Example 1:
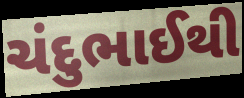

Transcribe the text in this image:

ચંદુભાઈથી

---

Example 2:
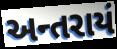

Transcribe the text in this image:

અન્તરાયં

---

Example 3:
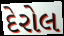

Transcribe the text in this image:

દેરોલ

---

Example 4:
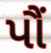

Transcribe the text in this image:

પૌં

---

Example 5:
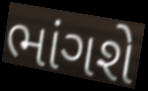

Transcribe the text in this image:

ભાંગશે